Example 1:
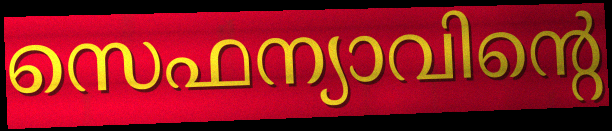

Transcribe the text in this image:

സെഫന്യാവിന്റെ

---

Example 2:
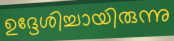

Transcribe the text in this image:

ഉദ്ദേശിച്ചായിരുന്നു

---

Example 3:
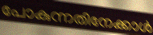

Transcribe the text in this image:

പോകുന്നതിനേക്കാൾ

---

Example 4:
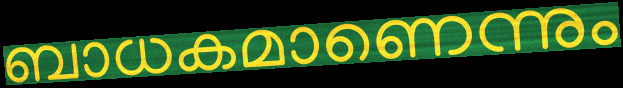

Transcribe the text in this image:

ബാധകമാണെന്നും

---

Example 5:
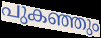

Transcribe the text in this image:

പുകഞ്ഞും